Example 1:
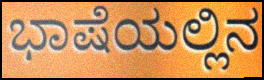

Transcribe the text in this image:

ಭಾಷೆಯಲ್ಲಿನ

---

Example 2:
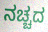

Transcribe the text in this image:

ನಚ್ಚದ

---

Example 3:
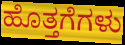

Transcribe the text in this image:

ಹೊತ್ತಗೆಗಳು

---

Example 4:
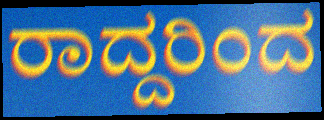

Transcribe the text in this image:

ರಾದ್ದರಿಂದ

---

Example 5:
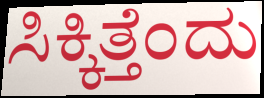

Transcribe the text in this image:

ಸಿಕ್ಕಿತ್ತೆಂದು